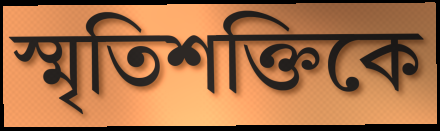
স্মৃতিশক্তিকে